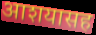
आशयासह